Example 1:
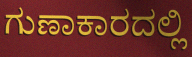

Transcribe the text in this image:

ಗುಣಾಕಾರದಲ್ಲಿ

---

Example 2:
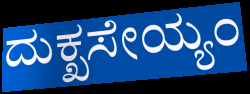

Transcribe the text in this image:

ದುಕ್ಖಸೇಯ್ಯಂ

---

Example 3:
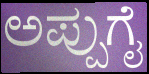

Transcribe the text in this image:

ಅಪ್ಪುಗೈ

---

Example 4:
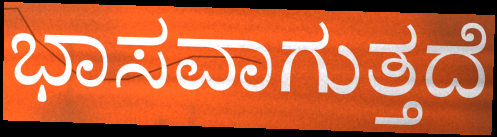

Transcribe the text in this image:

ಭಾಸವಾಗುತ್ತದೆ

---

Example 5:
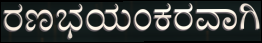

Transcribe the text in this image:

ರಣಭಯಂಕರವಾಗಿ